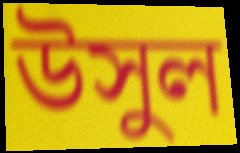
উসুল